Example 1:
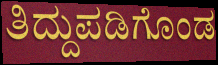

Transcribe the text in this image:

ತಿದ್ದುಪಡಿಗೊಂಡ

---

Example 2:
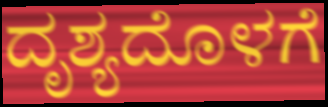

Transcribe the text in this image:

ದೃಶ್ಯದೊಳಗೆ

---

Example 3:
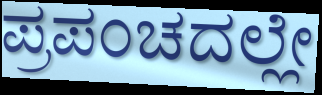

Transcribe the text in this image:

ಪ್ರಪಂಚದಲ್ಲೇ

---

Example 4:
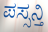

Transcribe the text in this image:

ಪಸ್ಸನ್ತಿ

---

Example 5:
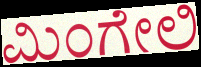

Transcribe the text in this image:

ಮಿಂಗೇಲಿ